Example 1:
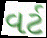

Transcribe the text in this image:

વર્ટ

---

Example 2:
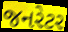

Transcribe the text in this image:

જનરેટર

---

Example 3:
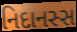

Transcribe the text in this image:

નિદાનસ્સ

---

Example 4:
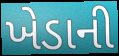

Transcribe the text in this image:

ખેડાની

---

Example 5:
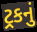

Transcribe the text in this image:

ટ્રકનું